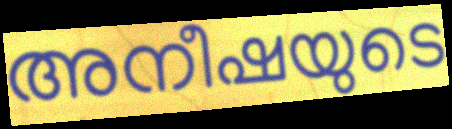
അനീഷയുടെ